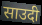
साउदी